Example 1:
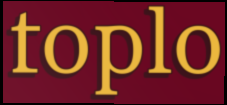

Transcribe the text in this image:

toplo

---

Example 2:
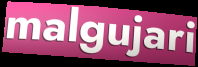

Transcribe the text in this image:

malgujari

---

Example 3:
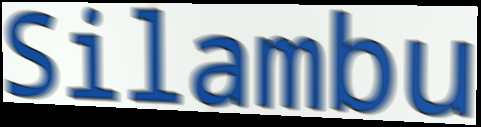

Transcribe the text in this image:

Silambu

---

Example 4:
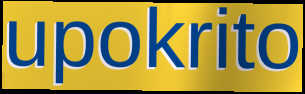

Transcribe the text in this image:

upokrito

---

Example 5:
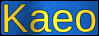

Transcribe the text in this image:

Kaeo